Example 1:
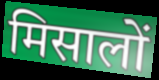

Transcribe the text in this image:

मिसालों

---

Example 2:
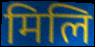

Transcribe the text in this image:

मिलि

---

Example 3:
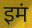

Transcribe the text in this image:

इमं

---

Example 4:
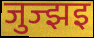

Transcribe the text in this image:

जुज्झइ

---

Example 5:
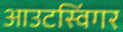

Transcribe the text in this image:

आउटस्विंगर